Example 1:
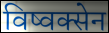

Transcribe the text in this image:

विष्वक्सेन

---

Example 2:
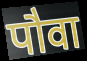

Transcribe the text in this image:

पौवा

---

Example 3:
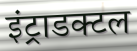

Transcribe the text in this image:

इंट्राडक्टल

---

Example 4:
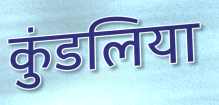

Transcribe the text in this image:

कुंडलिया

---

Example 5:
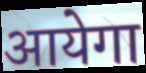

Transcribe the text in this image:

आयेगा